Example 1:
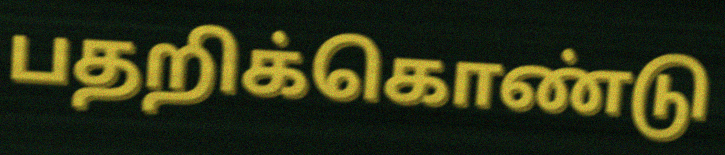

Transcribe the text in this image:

பதறிக்கொண்டு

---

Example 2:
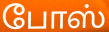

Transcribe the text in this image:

போஸ்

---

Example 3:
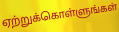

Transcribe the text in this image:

ஏற்றுக்கொள்ளுங்கள்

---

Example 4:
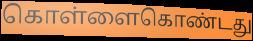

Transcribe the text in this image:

கொள்ளைகொண்டது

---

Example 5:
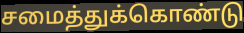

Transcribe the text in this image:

சமைத்துக்கொண்டு